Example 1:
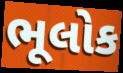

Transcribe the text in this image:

ભૂલોક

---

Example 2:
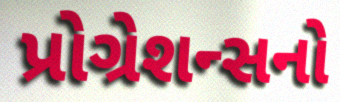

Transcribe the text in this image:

પ્રોગ્રેશન્સનો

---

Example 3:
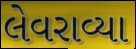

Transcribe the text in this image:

લેવરાવ્યા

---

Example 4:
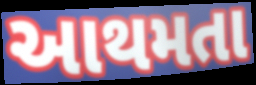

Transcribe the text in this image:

આથમતા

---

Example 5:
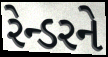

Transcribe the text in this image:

રેન્ડરને